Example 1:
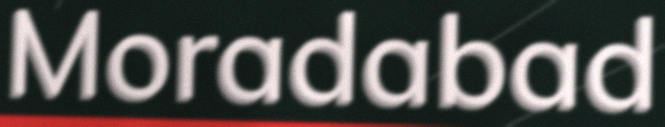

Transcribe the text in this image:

Moradabad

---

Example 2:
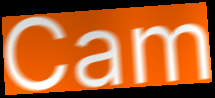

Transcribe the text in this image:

Cam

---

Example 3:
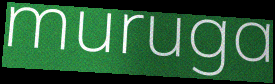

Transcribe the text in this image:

muruga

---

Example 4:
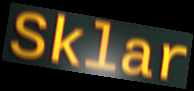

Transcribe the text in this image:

Sklar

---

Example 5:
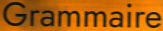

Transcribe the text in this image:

Grammaire